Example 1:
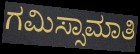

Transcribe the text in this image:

ಗಮಿಸ್ಸಾಮಾತಿ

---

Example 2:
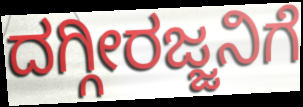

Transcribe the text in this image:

ದಗ್ಗೀರಜ್ಜನಿಗೆ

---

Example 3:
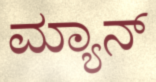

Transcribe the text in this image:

ಮ್ಯಾನ್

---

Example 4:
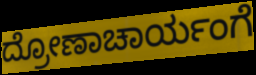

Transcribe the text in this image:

ದ್ರೋಣಾಚಾರ್ಯಂಗೆ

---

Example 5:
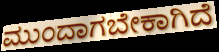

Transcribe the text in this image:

ಮುಂದಾಗಬೇಕಾಗಿದೆ